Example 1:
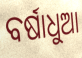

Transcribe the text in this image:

ବର୍ଷାଧୁଆ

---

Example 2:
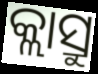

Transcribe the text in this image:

କ୍ଲାସ୍ରୁ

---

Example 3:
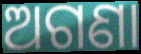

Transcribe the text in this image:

ଅଗଣା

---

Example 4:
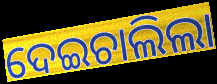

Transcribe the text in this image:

ଦେଇଚାଲିଲା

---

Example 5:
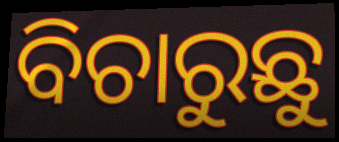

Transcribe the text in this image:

ବିଚାରୁଛୁ